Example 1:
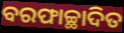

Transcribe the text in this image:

ବରଫାଚ୍ଛାଦିତ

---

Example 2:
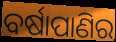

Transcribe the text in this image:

ବର୍ଷାପାଣିର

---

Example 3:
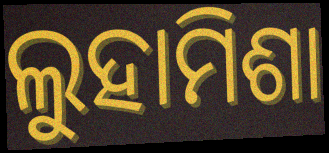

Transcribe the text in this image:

ଲୁହାମିଶା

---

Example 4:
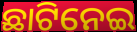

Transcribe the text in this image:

ଛାଟିନେଇ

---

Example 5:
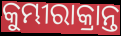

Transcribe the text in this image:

କୁମ୍ଭୀରାକ୍ରାନ୍ତ